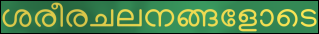
ശരീരചലനങ്ങളോടെ